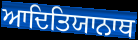
ਆਦਿਤਿਯਾਨਾਥ